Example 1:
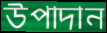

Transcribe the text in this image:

উপাদান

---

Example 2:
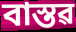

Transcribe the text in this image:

বাস্তৱ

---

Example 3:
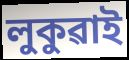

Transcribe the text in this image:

লুকুৱাই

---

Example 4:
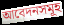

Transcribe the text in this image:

আবেদনসমূহ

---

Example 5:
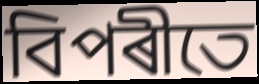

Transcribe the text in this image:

বিপৰীতে